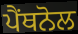
ਪੈਂਥਨੋਲ